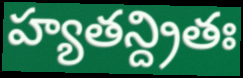
హ్యతన్ద్రితః